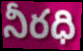
నీరధి